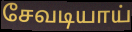
சேவடியாய்